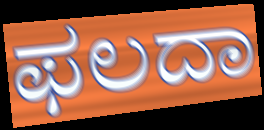
ಫಲದಾ